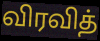
விரவித்